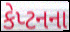
કેપ્ટનના